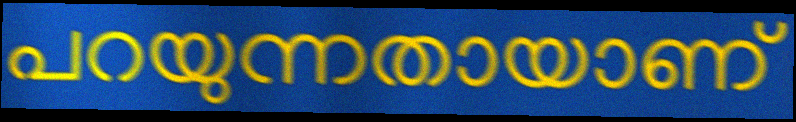
പറയുന്നതായാണ്